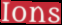
Ions